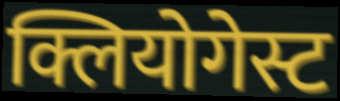
क्लियोगेस्ट